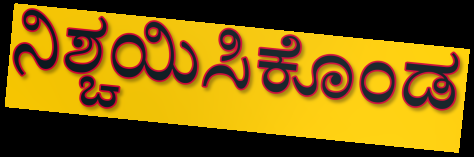
ನಿಶ್ಚಯಿಸಿಕೊಂಡ